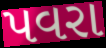
પવરા